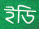
ইডি